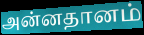
அன்னதானம்